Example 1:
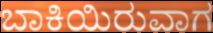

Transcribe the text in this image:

ಬಾಕಿಯಿರುವಾಗ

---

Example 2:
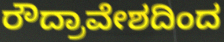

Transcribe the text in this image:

ರೌದ್ರಾವೇಶದಿಂದ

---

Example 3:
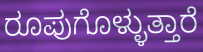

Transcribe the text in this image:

ರೂಪುಗೊಳ್ಳುತ್ತಾರೆ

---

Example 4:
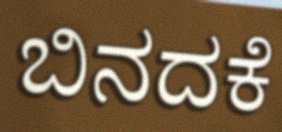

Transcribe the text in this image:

ಬಿನದಕೆ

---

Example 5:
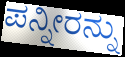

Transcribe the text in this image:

ಪನ್ನೀರನ್ನು